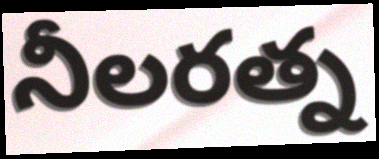
నీలరత్న